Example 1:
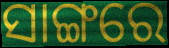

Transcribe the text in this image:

ସାଙ୍ଗରେ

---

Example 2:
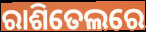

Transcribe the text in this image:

ରାଶିତେଲରେ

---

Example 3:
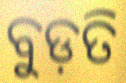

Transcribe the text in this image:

ବୁଡ଼ତି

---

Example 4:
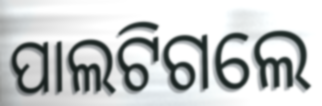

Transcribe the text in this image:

ପାଲଟିଗଲେ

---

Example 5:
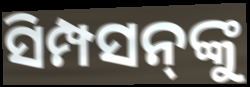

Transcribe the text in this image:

ସିମ୍ପସନ୍‍ଙ୍କୁ